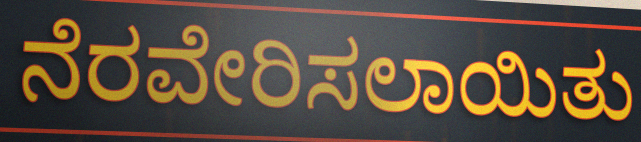
ನೆರವೇರಿಸಲಾಯಿತು